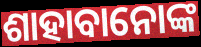
ଶାହାବାନୋଙ୍କ